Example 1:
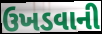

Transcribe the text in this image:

ઉખડવાની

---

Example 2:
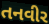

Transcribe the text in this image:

તનવીર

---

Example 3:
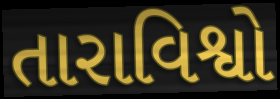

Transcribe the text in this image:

તારાવિશ્વો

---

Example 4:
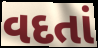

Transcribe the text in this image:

વદતાં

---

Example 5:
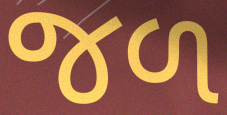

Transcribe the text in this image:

જળ